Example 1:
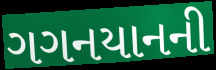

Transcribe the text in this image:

ગગનયાનની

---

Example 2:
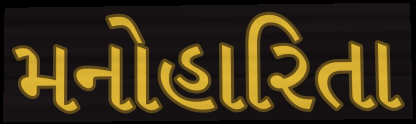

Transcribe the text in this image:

મનોહારિતા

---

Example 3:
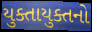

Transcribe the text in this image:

યુક્તાયુક્તનો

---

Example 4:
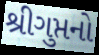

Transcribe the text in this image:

શ્રીગુપ્તનો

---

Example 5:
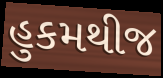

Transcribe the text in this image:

હુકમથીજ